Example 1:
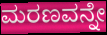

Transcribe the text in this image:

ಮರಣವನ್ನೇ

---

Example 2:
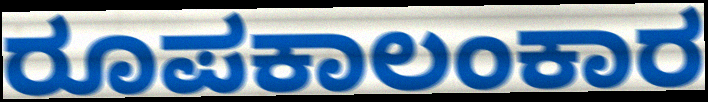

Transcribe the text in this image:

ರೂಪಕಾಲಂಕಾರ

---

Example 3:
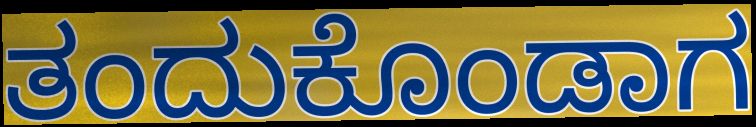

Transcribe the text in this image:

ತಂದುಕೊಂಡಾಗ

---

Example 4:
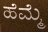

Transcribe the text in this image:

ಹೆಮ್ಮೆ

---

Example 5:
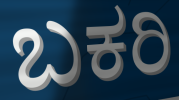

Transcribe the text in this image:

ಬಕರಿ